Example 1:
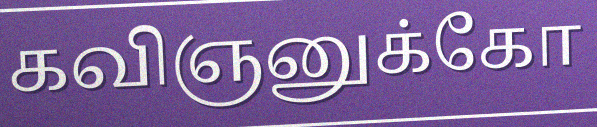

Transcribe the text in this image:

கவிஞனுக்கோ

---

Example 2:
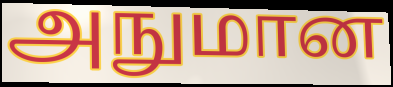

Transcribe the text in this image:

அநுமான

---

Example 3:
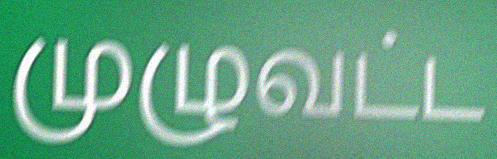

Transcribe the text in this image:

முழுவட்ட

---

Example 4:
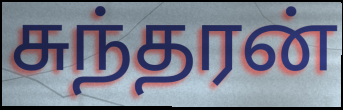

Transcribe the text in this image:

சுந்தரன்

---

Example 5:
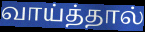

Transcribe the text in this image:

வாய்த்தால்